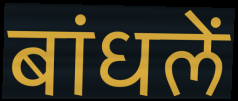
बांधलें